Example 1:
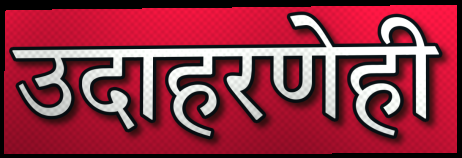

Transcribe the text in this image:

उदाहरणेही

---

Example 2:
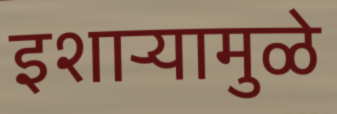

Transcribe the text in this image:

इशाऱ्यामुळे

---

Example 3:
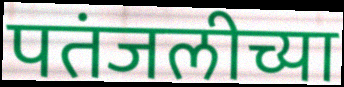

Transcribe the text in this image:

पतंजलीच्या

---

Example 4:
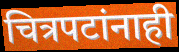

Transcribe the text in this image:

चित्रपटांनाही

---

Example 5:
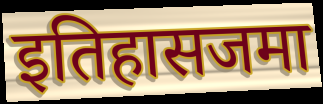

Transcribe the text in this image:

इतिहासजमा